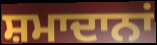
ਸ਼ਮਾਦਾਨਾਂ